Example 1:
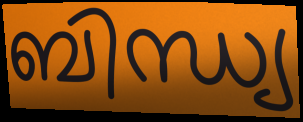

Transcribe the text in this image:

ബിന്ധ്യ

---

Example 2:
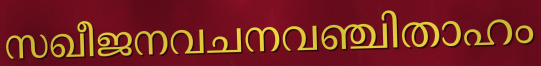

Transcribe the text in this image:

സഖീജനവചനവഞ്ചിതാഹം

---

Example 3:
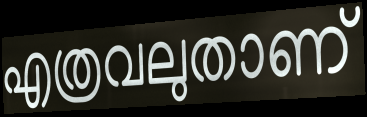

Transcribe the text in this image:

എത്രവലുതാണ്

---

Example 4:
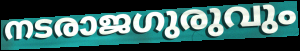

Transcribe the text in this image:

നടരാജഗുരുവും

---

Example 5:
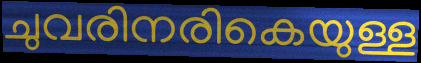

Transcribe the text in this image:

ചുവരിനരികെയുള്ള